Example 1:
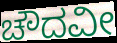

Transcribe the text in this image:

ಚೌದವೀ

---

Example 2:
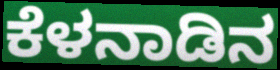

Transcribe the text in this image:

ಕೆಳನಾಡಿನ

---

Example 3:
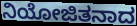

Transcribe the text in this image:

ನಿಯೋಜಿತನಾದ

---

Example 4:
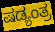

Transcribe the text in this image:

ಷಡ್ಯಂತ್ರ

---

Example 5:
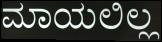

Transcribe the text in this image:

ಮಾಯಲಿಲ್ಲ